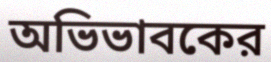
অভিভাবকের